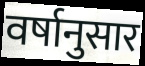
वर्षानुसार